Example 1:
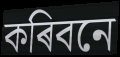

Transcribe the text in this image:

কৰিবনে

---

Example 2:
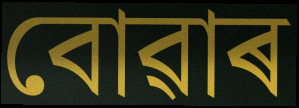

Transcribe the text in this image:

বোৱাৰ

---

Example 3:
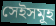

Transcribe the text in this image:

সেইসমূহ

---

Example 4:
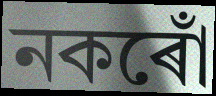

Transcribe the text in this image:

নকৰোঁ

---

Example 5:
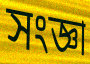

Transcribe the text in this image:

সংজ্ঞা